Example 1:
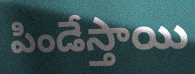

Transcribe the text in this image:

పిండేస్తాయి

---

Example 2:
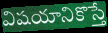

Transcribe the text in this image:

విషయానికొస్తే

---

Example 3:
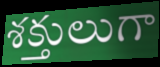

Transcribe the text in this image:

శక్తులుగా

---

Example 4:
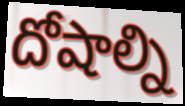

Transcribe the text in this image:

దోషాల్ని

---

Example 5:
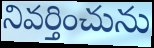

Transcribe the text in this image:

నివర్తించును